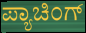
ಪ್ಯಾಚಿಂಗ್